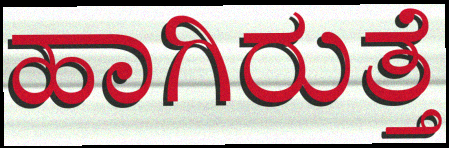
ಹಾಗಿರುತ್ತೆ